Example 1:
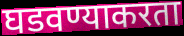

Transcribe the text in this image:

घडवण्याकरता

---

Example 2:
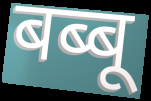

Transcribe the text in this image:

बब्बू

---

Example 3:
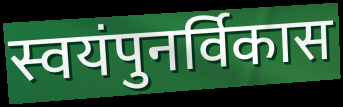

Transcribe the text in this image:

स्वयंपुनर्विकास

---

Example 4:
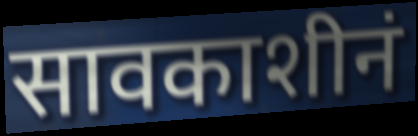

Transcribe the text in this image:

सावकाशीनं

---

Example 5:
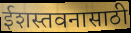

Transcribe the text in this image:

ईशस्तवनासाठी